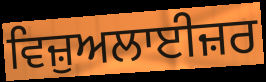
ਵਿਜ਼ੁਅਲਾਈਜ਼ਰ